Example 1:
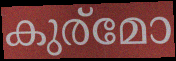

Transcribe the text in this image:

കുര്മോ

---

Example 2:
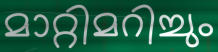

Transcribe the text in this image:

മാറ്റിമറിച്ചും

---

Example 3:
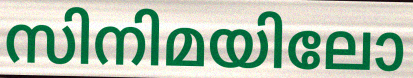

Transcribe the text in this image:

സിനിമയിലോ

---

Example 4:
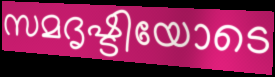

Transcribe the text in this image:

സമദൃഷ്ടിയോടെ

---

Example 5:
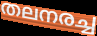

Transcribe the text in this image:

തലനരച്ച